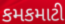
કમકમાટી